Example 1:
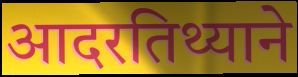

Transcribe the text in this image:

आदरतिथ्याने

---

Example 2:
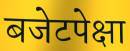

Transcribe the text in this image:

बजेटपेक्षा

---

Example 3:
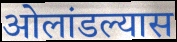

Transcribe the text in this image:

ओलांडल्यास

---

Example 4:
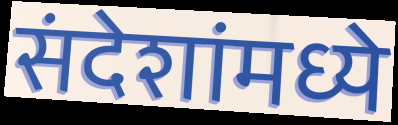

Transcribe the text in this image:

संदेशांमध्ये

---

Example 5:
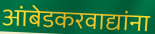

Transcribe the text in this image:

आंबेडकरवाद्यांना